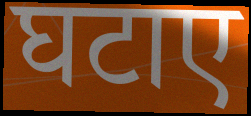
घटाए